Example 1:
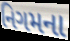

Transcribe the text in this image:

નિગમના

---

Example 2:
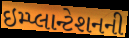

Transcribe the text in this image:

ઇમ્પ્લાન્ટેશનની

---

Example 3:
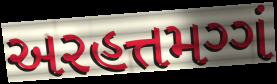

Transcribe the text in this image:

અરહત્તમગ્ગં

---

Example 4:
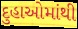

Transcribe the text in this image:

દુહાઓમાંથી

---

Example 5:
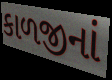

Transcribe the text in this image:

કાળજીનાં